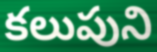
కలుపుని